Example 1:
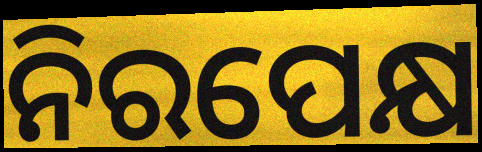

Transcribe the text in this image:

ନିରପେକ୍ଷ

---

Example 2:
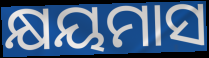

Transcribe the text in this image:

କ୍ଷୟମାସ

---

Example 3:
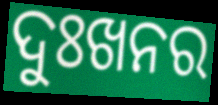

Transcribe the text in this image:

ଦୁଃଖନର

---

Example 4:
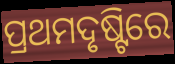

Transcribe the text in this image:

ପ୍ରଥମଦୃଷ୍ଟିରେ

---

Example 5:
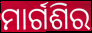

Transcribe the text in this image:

ମାର୍ଗଶିର